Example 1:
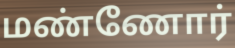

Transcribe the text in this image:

மண்ணோர்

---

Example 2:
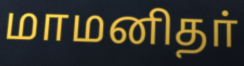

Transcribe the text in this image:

மாமனிதர்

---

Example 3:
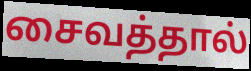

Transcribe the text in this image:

சைவத்தால்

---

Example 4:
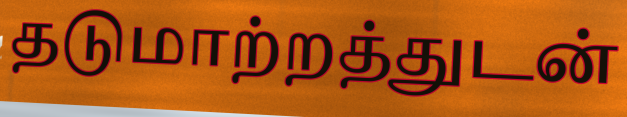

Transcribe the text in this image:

தடுமாற்றத்துடன்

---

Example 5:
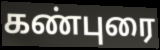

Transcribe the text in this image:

கண்புரை